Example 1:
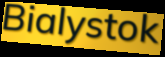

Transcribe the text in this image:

Bialystok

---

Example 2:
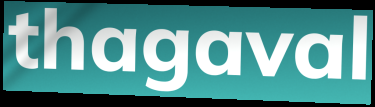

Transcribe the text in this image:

thagaval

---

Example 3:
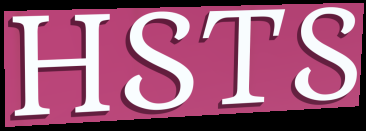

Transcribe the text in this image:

HSTS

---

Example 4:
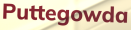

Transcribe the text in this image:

Puttegowda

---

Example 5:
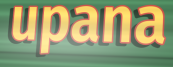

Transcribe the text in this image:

upana